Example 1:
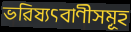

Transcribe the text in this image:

ভৱিষ্যৎবাণীসমূহ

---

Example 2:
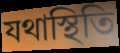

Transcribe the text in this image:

যথাস্থিতি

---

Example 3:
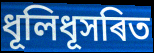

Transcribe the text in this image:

ধূলিধূসৰিত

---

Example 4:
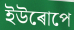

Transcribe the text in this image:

ইউৰোপে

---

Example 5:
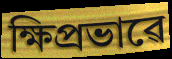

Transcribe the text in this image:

ক্ষিপ্ৰভাৱে